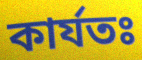
কার্যতঃ